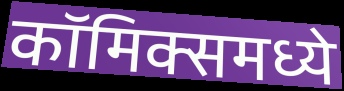
कॉमिक्समध्ये